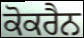
ਕੋਕਰੈਨ